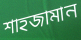
শাহজামান